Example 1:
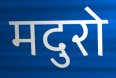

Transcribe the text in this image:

मदुरो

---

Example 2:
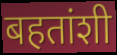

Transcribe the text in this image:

बहतांशी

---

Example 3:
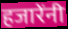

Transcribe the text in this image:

हजारेंनी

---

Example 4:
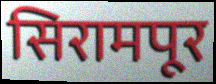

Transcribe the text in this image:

सिरामपूर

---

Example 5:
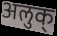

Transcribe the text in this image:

अलुक्